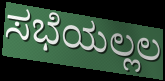
ಸಭೆಯಲ್ಲಲ